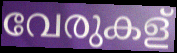
വേരുകള്